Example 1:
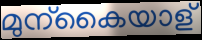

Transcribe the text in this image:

മുന്കൈയാള്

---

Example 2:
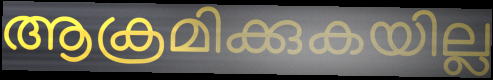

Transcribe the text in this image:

ആക്രമിക്കുകയില്ല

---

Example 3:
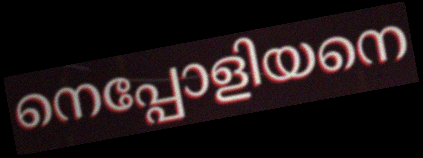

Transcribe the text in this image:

നെപ്പോളിയനെ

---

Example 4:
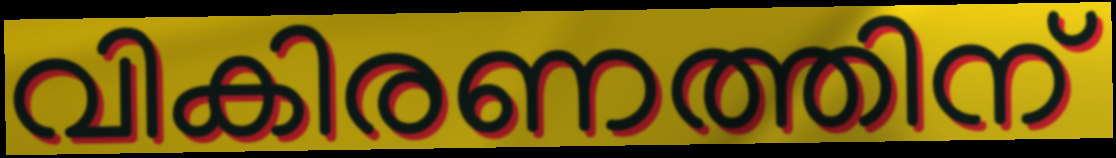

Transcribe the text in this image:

വികിരണത്തിന്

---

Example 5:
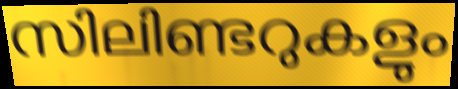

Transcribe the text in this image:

സിലിണ്ടറുകളും